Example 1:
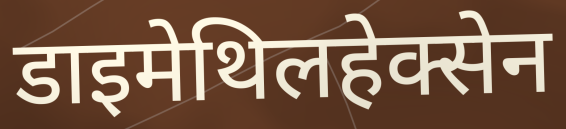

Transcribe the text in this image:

डाइमेथिलहेक्सेन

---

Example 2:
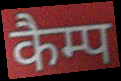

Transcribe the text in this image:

कैम्प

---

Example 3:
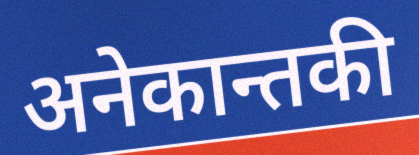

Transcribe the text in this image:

अनेकान्तकी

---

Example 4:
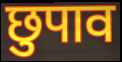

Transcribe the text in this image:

छुपाव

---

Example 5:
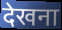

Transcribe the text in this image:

देखना